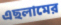
এছলামের